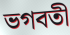
ভগবতী